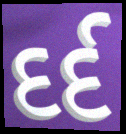
દર્દ